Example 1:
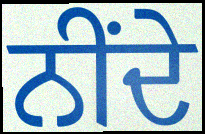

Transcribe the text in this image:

ਨੀਂਦੇ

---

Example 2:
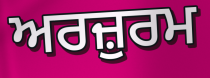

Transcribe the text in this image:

ਅਰਜ਼ੁਰਮ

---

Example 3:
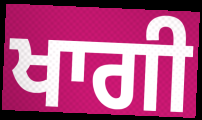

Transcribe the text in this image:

ਖਾਗੀ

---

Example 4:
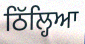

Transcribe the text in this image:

ਠਿੱਲ੍ਹਿਆ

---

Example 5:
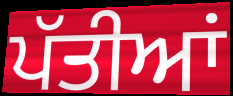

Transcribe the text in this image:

ਪੱਤੀਆਂ